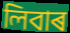
লিবাৰ